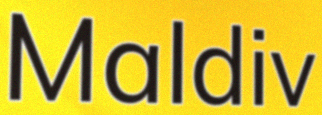
Maldiv